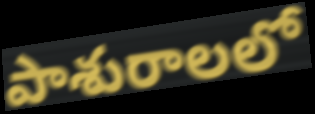
పాశురాలలో